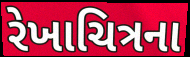
રેખાચિત્રના